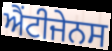
ਐਂਟੀਜੇਨਸ